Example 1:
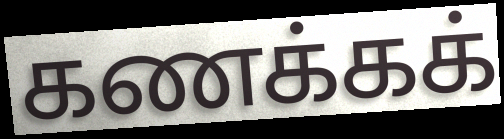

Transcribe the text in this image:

கணக்கக்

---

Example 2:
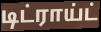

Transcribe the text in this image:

டிட்ராய்ட்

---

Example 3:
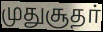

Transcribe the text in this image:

முதுசூதர்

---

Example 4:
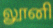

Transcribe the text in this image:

லூனி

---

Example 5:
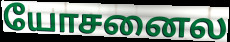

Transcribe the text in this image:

யோசனைல